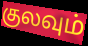
குலவும்